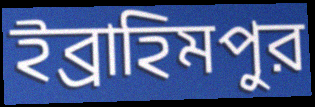
ইব্রাহিমপুর